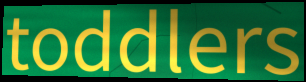
toddlers